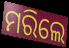
ମରିଲେ